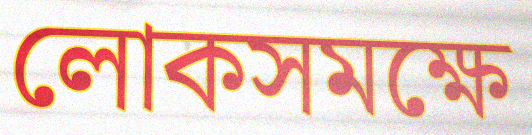
লোকসমক্ষে